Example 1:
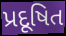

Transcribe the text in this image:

પ્રદૂષિત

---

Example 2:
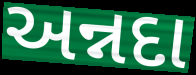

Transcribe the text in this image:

અન્નદા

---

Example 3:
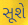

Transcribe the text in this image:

સૂશે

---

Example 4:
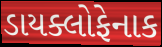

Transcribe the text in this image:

ડાયક્લોફેનાક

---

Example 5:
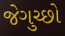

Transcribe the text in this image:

જેગુચ્છો